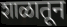
शाळातून